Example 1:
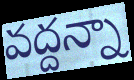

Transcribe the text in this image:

వద్దన్నా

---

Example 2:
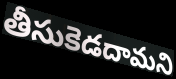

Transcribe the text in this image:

తీసుకెడదామని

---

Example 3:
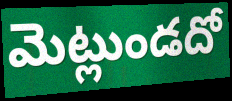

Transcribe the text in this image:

మెట్లుండదో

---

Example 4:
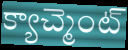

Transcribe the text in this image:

క్యాచ్మెంట్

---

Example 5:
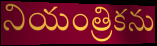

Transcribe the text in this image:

నియంత్రికను